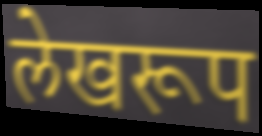
लेखरूप